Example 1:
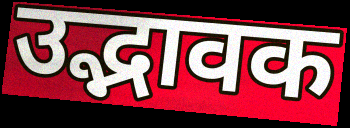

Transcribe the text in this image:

उद्भावक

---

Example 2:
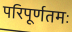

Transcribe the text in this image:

परिपूर्णतमः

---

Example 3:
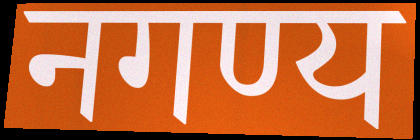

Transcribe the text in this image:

नगण्य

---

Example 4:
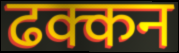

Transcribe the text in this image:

ढक्कन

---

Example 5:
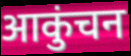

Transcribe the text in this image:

आकुंचन